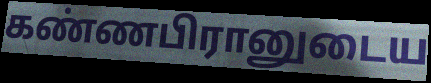
கண்ணபிரானுடைய